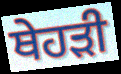
ਥੇਹੜੀ